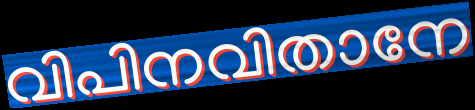
വിപിനവിതാനേ